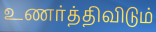
உணர்த்திவிடும்